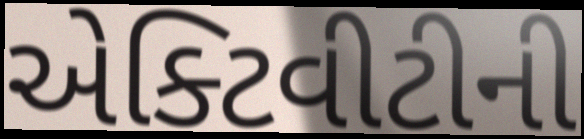
એક્ટિવીટીની